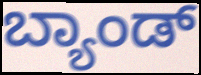
ಬ್ಯಾಂಡ್